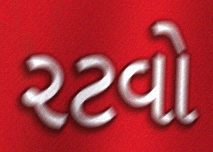
રટવો